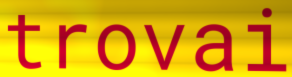
trovai